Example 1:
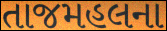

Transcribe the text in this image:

તાજમહલના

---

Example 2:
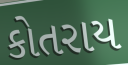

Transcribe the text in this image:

કોતરાય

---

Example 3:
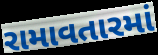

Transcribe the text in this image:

રામાવતારમાં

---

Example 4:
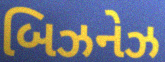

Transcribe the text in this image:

બિઝનેઝ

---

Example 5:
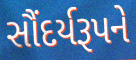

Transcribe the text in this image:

સૌંદર્યરૂપને